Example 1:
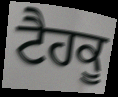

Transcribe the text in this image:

ਟੈਹਕੂ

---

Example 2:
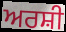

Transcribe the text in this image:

ਅਰਸ਼ੀ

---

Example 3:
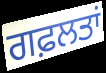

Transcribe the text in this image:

ਗਫ਼ਲਤਾਂ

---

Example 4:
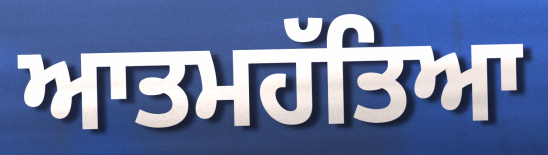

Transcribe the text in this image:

ਆਤਮਹੱਤਿਆ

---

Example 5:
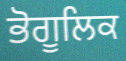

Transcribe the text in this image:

ਭੋਗੂਲਿਕ